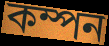
কম্পন